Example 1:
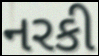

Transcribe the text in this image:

નરકી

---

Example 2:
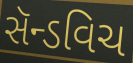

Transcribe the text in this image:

સૅન્ડવિચ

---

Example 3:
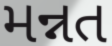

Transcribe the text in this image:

મન્નત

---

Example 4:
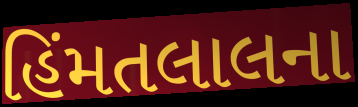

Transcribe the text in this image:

હિંમતલાલના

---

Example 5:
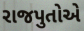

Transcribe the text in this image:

રાજપુતોએ